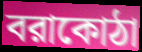
বরাকোঠা